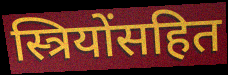
स्त्रियोंसहित